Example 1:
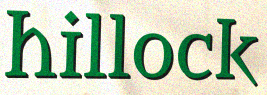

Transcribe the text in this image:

hillock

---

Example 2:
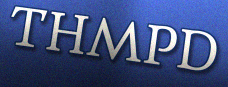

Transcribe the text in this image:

THMPD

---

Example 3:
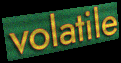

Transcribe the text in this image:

volatile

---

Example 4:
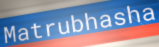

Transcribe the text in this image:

Matrubhasha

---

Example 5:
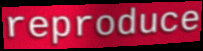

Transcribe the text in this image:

reproduce